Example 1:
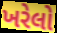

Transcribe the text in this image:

ખરેલો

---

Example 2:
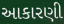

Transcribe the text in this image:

આકારણી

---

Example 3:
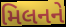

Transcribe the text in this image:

મિલનને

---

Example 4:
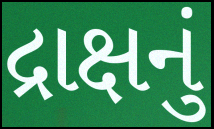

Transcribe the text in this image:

દ્રાક્ષનું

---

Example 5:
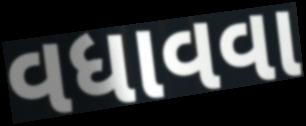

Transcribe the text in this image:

વધાવવા